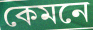
কেমনে